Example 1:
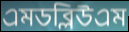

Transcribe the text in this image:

এমডব্লিউএম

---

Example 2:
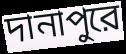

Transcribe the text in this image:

দানাপুরে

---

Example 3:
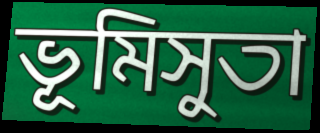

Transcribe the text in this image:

ভূমিসুতা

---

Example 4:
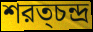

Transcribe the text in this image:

শরত্চন্দ্র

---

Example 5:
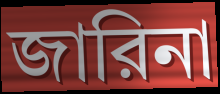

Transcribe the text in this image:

জারিনা